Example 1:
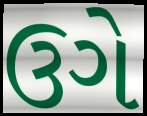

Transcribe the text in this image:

ઉગે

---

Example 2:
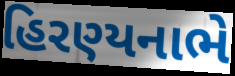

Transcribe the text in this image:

હિરણ્યનાભે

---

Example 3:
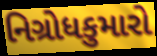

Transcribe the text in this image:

નિગ્રોધકુમારો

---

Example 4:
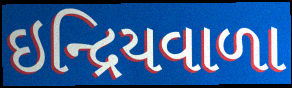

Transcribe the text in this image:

ઇન્દ્રિયવાળા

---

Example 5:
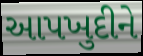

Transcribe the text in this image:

આપખુદીને